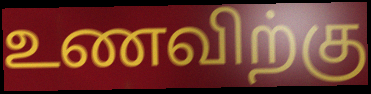
உணவிற்கு